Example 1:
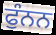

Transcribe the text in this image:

ਫੁੰਨਨ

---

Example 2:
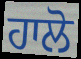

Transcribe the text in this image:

ਹਾਲੋ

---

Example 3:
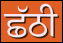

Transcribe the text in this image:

ਛੱਠੀ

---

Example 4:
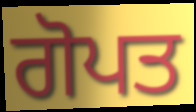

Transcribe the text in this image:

ਗੋਪਤ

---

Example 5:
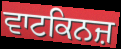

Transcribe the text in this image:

ਵਾਟਕਿਨਜ਼